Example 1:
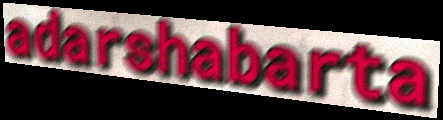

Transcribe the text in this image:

adarshabarta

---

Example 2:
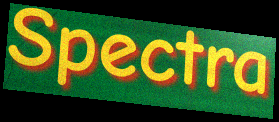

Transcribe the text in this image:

Spectra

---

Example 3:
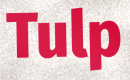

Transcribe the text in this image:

Tulp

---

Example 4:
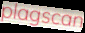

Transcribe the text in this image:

plagscan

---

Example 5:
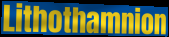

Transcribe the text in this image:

Lithothamnion